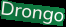
Drongo